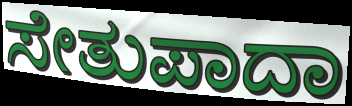
ಸೇತುಪಾದಾ